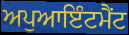
ਅਪੁਆਇੰਟਮੈਂਟ